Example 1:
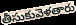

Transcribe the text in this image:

తీసుకువెళతారు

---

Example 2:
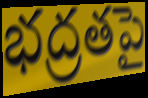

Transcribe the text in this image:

భద్రతపై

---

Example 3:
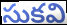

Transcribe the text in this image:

సుకవి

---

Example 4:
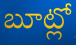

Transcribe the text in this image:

బూట్లో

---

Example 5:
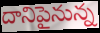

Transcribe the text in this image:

దానిపైనున్న